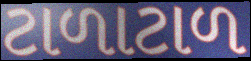
ટાળાટાળ